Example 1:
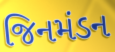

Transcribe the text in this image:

જિનમંડન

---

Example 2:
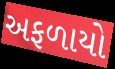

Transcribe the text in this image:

અફળાયો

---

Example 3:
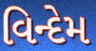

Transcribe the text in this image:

વિન્દેમ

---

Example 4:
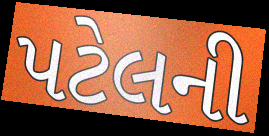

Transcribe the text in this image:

પટેલની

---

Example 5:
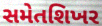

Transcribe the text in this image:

સમેતશિખર